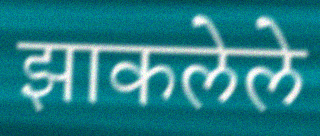
झाकलेले